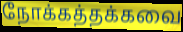
நோக்கத்தக்கவை